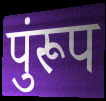
पुंरूप